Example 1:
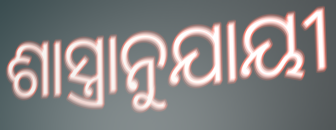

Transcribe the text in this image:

ଶାସ୍ତ୍ରାନୁଯାୟୀ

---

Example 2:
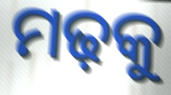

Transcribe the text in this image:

ମଢ଼କୁ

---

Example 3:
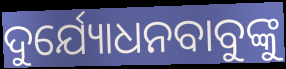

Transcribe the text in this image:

ଦୁର୍ଯ୍ୟୋଧନବାବୁଙ୍କୁ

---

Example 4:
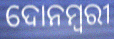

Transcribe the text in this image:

ଦୋନମ୍ବରୀ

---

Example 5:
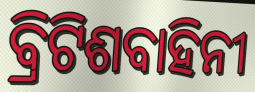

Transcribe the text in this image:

ବ୍ରିଟିଶବାହିନୀ